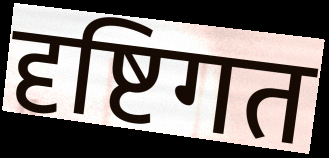
दृष्टिगत